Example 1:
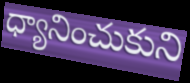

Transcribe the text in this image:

ధ్యానించుకుని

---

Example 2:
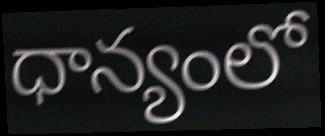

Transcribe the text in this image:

ధాన్యంలో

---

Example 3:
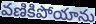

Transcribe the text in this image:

వణికిపోయాను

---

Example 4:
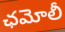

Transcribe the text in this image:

ఛమోలీ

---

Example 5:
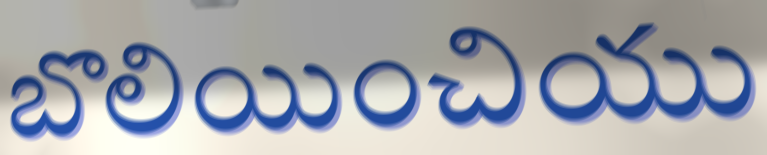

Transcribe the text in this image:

బొలియించియు